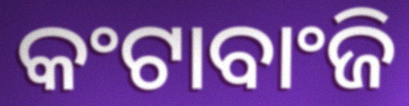
କଂଟାବାଂଜି